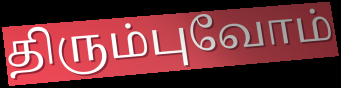
திரும்புவோம்